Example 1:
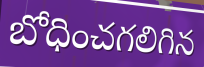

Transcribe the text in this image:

బోధించగలిగిన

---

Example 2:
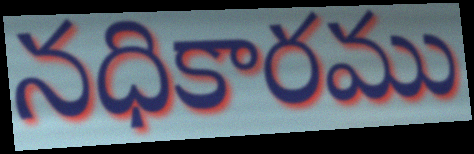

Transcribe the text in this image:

నధికారము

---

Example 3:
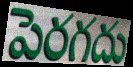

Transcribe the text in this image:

పెరగదు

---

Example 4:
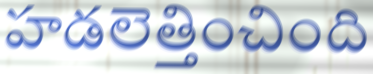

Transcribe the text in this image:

హడలెత్తించింది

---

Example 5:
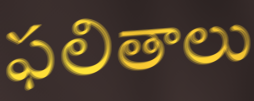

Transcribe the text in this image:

ఫలితాలు